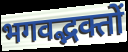
भगवद्भक्तों